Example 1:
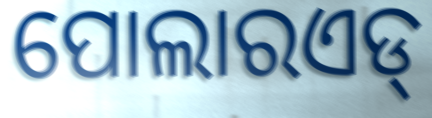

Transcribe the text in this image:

ପୋଲାରଏଡ୍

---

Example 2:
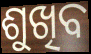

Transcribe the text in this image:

ଶୁଖିବ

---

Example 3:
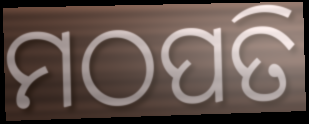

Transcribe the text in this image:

ମଠପତି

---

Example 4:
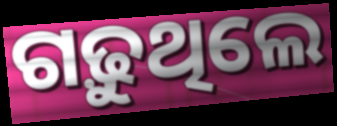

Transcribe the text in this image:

ଗଢ଼ୁଥିଲେ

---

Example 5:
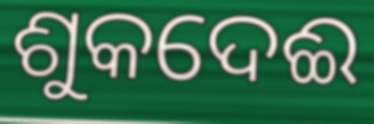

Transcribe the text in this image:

ଶୁକଦେଈ